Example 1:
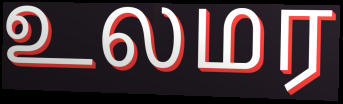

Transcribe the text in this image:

உலமர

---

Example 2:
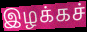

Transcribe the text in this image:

இழக்கச்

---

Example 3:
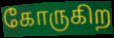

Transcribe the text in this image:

கோருகிற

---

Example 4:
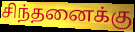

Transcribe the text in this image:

சிந்தனைக்கு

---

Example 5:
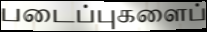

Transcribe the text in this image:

படைப்புகளைப்